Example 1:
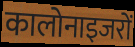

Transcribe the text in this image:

कालोनाइजरों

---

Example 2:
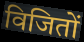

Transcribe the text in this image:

विजितों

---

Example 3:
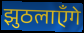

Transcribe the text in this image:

झुठलाएँगे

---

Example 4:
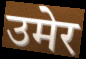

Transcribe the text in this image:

उमेर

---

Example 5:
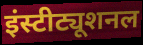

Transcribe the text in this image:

इंस्टीट्यूशनल